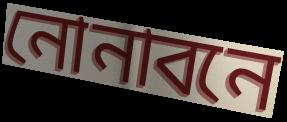
নোনাবনে